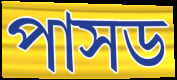
পাসড